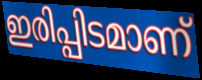
ഇരിപ്പിടമാണ്